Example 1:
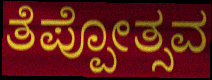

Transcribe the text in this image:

ತೆಪ್ಪೋತ್ಸವ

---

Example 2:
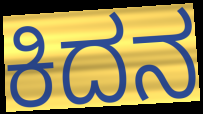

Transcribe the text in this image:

ಕಿದನ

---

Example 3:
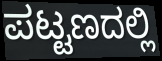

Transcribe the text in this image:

ಪಟ್ಟಣದಲ್ಲಿ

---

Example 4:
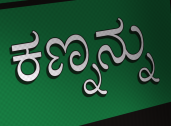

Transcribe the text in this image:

ಕಣ್ನನ್ನು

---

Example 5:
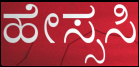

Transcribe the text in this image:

ಹೇಸ್ಸಸಿ